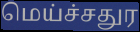
மெய்ச்சதுர